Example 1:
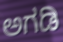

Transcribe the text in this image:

ಅಗಡಿ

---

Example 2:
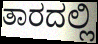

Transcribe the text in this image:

ತಾರದಲ್ಲಿ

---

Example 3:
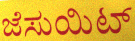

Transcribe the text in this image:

ಜೆಸುಯಿಟ್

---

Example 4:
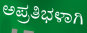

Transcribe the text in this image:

ಅಪ್ರತಿಭಳಾಗಿ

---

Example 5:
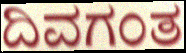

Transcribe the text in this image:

ದಿವಗಂತ